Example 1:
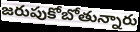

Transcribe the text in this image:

జరుపుకోబోతున్నారు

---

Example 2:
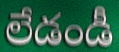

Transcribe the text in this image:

లేడండీ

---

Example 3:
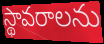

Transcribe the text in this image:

స్థావరాలను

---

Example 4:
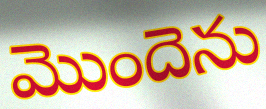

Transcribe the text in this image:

మొందెను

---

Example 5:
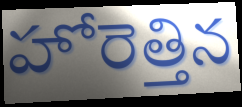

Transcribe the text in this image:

హోరెత్తిన